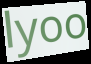
lyoo